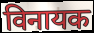
विनायक